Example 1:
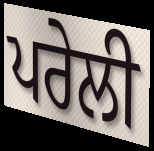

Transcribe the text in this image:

ਪਰੇਲੀ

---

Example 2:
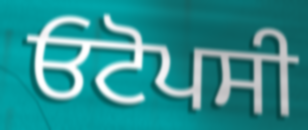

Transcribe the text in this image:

ਓਟੋਪਸੀ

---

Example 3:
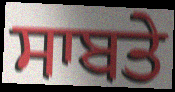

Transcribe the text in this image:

ਸਾਬਤੇ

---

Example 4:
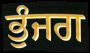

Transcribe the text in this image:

ਭੁੰਜਗ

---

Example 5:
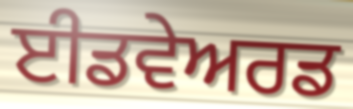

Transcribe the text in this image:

ਈਡਵੇਅਰਡ